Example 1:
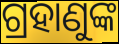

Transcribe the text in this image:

ଗ୍ରହାଣୁଙ୍କ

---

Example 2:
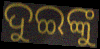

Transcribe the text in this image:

ଦୁଇଙ୍କୁ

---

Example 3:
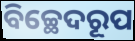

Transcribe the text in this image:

ବିଚ୍ଛେଦରୂପ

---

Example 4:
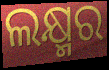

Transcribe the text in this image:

ଲକ୍ଷ୍ମର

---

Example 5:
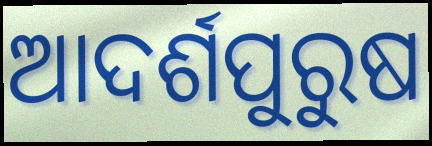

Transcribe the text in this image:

ଆଦର୍ଶପୁରୁଷ